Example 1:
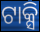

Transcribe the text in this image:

ଟାକ୍ସି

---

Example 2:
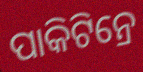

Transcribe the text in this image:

ପାକିଟିନ୍ରେ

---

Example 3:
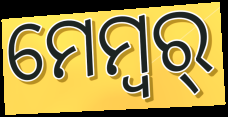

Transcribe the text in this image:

ମେମ୍ବର୍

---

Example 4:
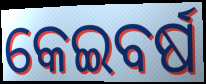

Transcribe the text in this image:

କେଇବର୍ଷ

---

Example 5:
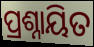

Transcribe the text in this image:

ପ୍ରଶ୍ନାୟିତ